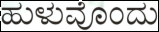
ಹುಳುವೊಂದು